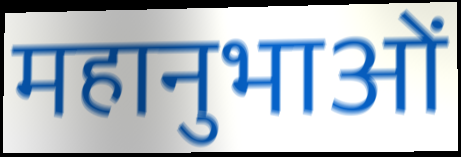
महानुभाओं